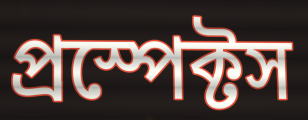
প্রস্পেক্টস